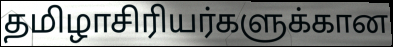
தமிழாசிரியர்களுக்கான